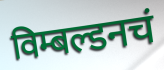
विम्बल्डनचं